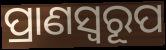
ପ୍ରାଣସ୍ୱରୂପ